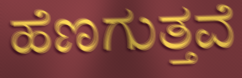
ಹೆಣಗುತ್ತವೆ